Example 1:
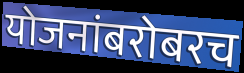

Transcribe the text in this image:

योजनांबरोबरच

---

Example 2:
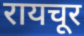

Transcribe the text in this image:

रायचूर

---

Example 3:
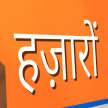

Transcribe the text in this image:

हज़ारों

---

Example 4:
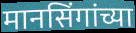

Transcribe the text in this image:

मानसिंगांच्या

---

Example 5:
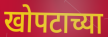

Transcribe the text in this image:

खोपटाच्या